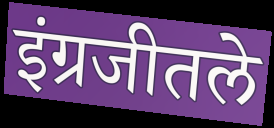
इंग्रजीतले